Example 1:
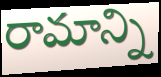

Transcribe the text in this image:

రామాన్ని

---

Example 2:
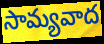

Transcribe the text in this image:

సామ్యవాద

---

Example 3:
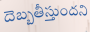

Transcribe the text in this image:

దెబ్బతీస్తుందని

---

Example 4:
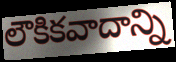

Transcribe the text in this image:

లౌకికవాదాన్ని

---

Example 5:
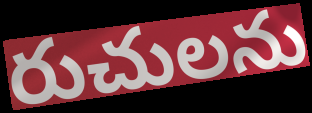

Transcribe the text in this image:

రుచులను